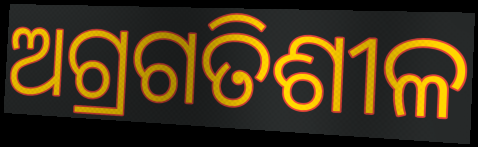
ଅଗ୍ରଗତିଶୀଳ